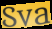
Sva